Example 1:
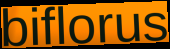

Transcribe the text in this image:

biflorus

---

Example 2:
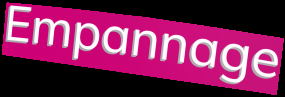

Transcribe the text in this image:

Empannage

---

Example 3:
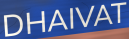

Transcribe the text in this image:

DHAIVAT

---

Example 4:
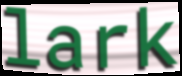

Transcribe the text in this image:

lark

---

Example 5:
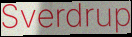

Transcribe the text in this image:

Sverdrup